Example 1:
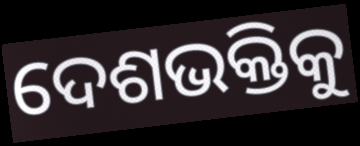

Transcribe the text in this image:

ଦେଶଭକ୍ତିକୁ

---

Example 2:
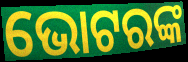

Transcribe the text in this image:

ଭୋଟରଙ୍କ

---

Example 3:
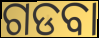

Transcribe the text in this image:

ଗଡବା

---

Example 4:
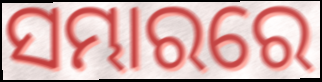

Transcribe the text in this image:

ସମ୍ଭାରରେ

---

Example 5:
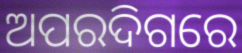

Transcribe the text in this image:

ଅପରଦିଗରେ